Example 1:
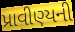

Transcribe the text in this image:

પ્રાવીણ્યની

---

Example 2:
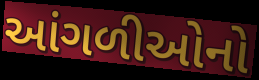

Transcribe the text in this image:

આંગળીઓનો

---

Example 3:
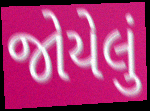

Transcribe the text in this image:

જોયેલું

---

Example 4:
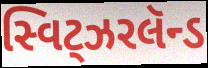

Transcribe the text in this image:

સ્વિટ્ઝરલૅન્ડ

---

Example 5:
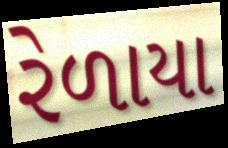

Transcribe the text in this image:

રેળાયા